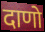
दाणो